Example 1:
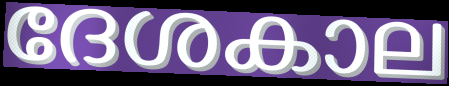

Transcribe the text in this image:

ദേശകാല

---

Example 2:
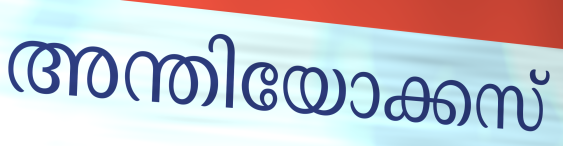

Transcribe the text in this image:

അന്തിയോക്കസ്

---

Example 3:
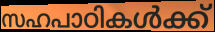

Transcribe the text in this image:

സഹപാഠികൾക്ക്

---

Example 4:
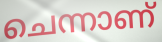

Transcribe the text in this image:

ചെന്നാണ്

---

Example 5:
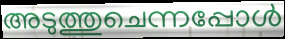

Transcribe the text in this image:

അടുത്തുചെന്നപ്പോൾ